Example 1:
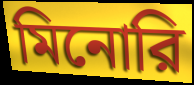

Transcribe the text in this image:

মিনোরি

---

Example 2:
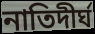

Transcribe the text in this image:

নাতিদীর্ঘ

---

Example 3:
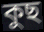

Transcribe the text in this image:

কুছ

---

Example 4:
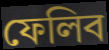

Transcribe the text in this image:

ফেলিব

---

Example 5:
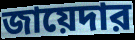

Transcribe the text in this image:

জায়েদার